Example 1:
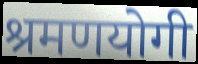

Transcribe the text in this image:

श्रमणयोगी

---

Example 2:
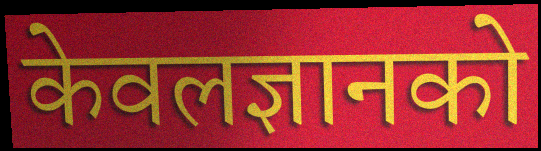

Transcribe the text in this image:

केवलज्ञानको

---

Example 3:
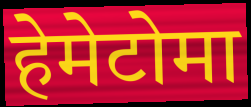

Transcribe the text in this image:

हेमेटोमा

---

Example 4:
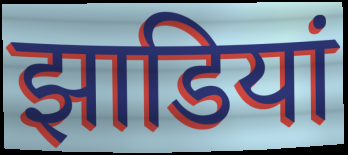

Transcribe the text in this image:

झाडियां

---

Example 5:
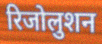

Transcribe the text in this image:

रिजोलुशन